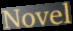
Novel